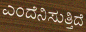
ಎಂದೆನಿಸುತ್ತಿದೆ